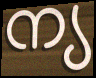
ന്യ